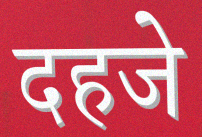
दहजे